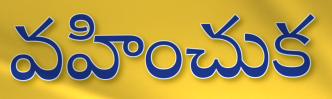
వహించుక